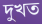
দুখত